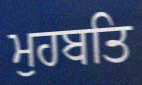
ਮੁਹਬਤਿ